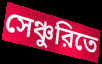
সেঞ্চুরিতে